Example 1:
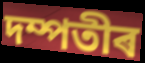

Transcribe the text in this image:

দম্পতীৰ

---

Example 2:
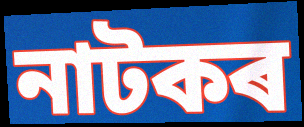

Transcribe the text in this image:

নাটকৰ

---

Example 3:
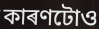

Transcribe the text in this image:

কাৰণটোও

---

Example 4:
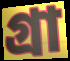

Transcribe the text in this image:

গ্ৰা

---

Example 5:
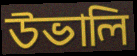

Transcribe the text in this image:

উভালি